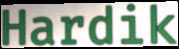
Hardik